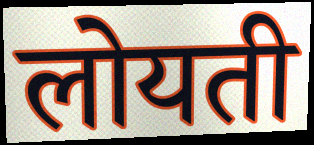
लोयती